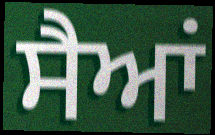
ਸੈਆਂ